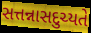
સત્તન્નાસદુચ્યતે